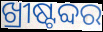
ଖ୍ରୀଷ୍ଟବ୍ଦର